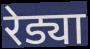
रेड्या